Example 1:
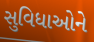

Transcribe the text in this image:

સુવિધાઓને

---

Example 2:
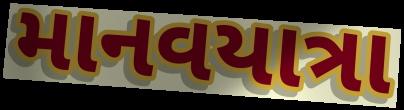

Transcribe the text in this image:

માનવયાત્રા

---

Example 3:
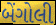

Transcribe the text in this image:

બેંગોલી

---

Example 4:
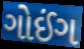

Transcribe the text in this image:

ગોઈંગ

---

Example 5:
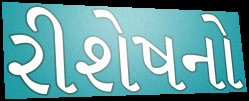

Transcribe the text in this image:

રીશેષનો